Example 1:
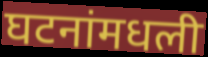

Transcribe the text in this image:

घटनांमधली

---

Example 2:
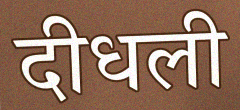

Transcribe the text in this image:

दीधली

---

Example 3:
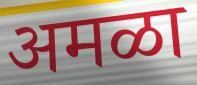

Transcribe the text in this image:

अमळा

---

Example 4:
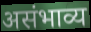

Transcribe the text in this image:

असंभाव्य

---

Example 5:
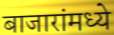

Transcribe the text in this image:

बाजारांमध्ये